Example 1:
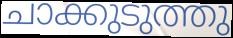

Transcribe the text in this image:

ചാക്കുടുത്തു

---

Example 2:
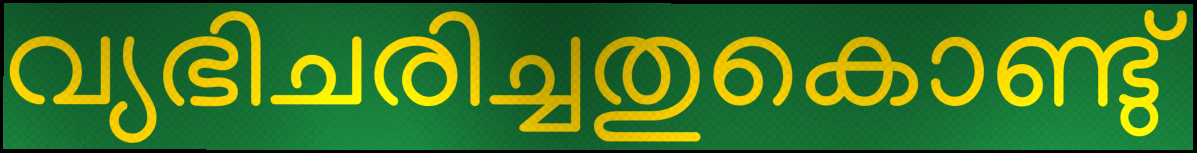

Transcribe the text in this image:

വ്യഭിചരിച്ചതുകൊണ്ടു്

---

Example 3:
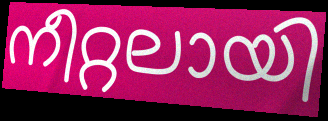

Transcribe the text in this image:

നീറ്റലായി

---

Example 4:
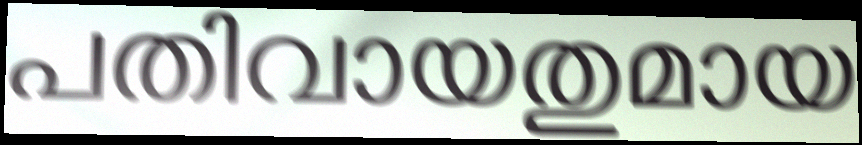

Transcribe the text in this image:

പതിവായതുമായ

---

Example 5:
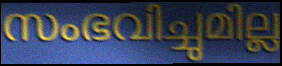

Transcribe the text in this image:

സംഭവിച്ചുമില്ല